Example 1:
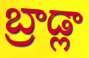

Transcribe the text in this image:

బ్రాడ్లా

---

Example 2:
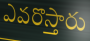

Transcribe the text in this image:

ఎవరొస్తారు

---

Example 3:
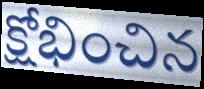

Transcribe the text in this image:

క్షోభించిన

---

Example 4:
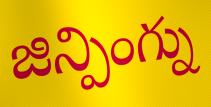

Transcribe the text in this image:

జిన్పింగ్ను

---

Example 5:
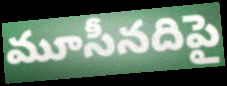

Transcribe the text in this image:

మూసీనదిపై